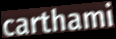
carthami